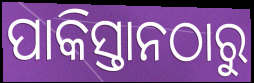
ପାକିସ୍ତାନଠାରୁ